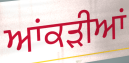
ਆਂਕੜੀਆਂ